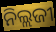
ନିଲ୍ଲଜୀ